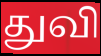
துவி